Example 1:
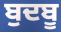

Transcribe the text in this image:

ਬੁਦਬੂ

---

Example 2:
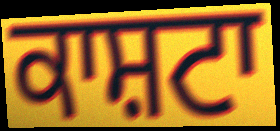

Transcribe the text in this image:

ਕਾਸ਼ਟਾ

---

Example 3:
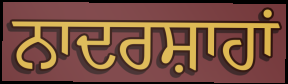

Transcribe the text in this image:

ਨਾਦਰਸ਼ਾਹਾਂ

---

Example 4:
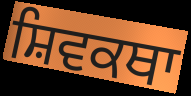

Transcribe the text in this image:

ਸ਼ਿਵਕਥਾ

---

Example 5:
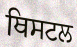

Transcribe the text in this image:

ਥਿਸਟਲ